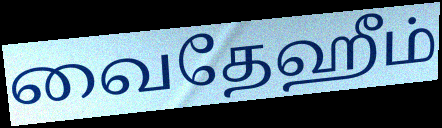
வைதேஹீம்